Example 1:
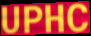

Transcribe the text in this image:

UPHC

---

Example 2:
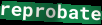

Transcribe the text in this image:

reprobate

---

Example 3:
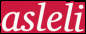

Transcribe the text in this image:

asleli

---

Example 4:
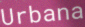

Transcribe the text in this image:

Urbana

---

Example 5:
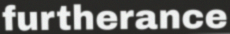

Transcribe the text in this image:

furtherance